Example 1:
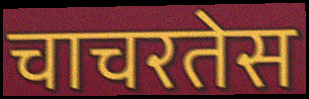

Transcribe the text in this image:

चाचरतेस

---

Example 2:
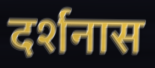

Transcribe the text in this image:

दर्शनास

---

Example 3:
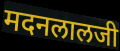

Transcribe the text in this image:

मदनलालजी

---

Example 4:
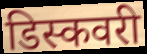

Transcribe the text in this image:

डिस्कवरी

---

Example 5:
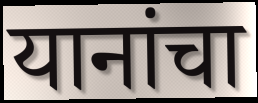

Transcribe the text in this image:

यानांचा